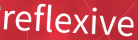
reflexive